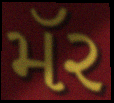
મૅર